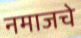
नमाजचे